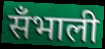
सँभाली